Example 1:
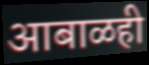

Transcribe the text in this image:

आबाळही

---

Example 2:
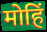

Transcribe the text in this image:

मोहिं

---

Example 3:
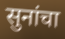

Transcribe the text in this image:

सुनांचा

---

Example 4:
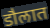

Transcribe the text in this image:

डौलात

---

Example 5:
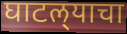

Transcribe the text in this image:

घाटल्याचा